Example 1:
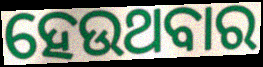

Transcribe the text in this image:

ହେଉଥବାର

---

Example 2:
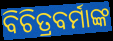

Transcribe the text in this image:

ବିଚିତ୍ରବର୍ମାଙ୍କ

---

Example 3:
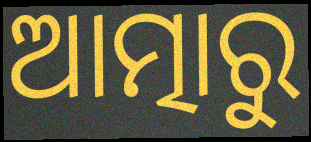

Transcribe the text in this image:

ଆତ୍ମାରୁ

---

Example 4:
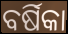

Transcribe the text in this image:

ବର୍ଷିକା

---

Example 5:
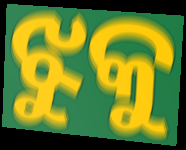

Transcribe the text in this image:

ଝୁକୁ